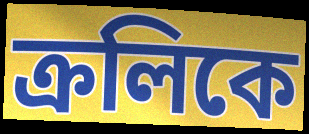
ক্রলিকে